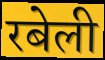
रबेली